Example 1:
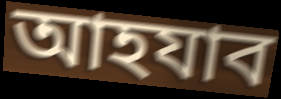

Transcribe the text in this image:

আহযাব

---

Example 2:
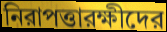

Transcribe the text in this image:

নিরাপত্তারক্ষীদের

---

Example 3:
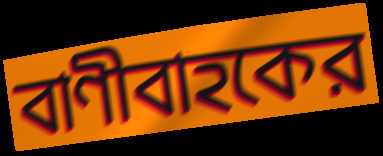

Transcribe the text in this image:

বাণীবাহকের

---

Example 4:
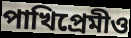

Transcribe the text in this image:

পাখিপ্রেমীও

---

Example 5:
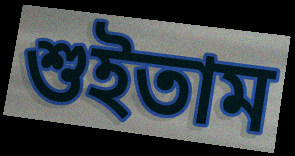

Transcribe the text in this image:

শুইতাম